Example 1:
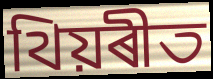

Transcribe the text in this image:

থিয়ৰীত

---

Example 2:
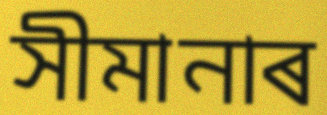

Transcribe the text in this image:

সীমানাৰ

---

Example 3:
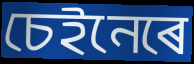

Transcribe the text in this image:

চেইনেৰে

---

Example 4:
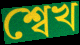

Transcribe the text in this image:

শ্বেখ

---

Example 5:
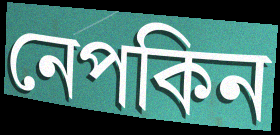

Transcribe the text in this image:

নেপকিন